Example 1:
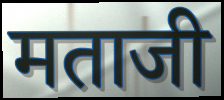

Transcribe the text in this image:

मताजी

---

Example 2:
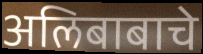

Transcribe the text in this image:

अलिबाबाचे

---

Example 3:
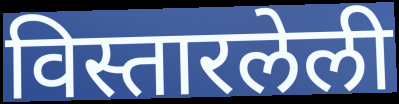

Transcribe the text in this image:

विस्तारलेली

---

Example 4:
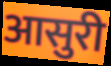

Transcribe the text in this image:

आसुरी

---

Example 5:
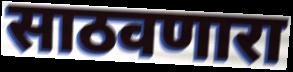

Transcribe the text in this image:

साठवणारा